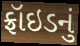
ફ્રૉઇડનું